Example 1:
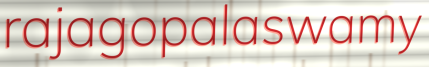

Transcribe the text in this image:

rajagopalaswamy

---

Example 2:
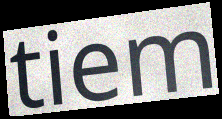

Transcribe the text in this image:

tiem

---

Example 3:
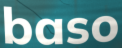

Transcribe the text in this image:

baso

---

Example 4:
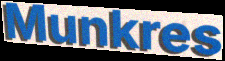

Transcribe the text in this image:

Munkres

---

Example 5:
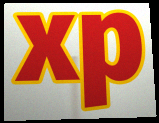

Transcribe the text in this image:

xp